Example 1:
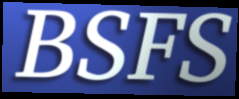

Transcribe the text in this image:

BSFS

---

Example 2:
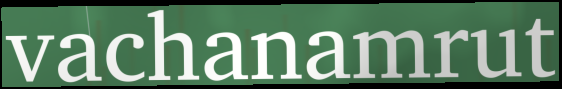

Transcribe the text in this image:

vachanamrut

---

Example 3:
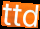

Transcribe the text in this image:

ttd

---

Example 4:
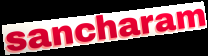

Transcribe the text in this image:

sancharam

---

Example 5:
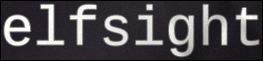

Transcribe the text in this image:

elfsight